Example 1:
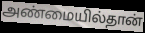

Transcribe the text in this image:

அண்மையில்தான்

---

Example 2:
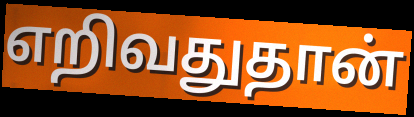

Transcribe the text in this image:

எறிவதுதான்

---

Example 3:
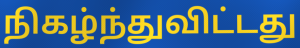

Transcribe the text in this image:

நிகழ்ந்துவிட்டது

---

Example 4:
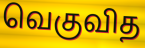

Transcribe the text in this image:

வெகுவித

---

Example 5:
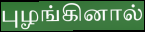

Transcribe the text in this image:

புழங்கினால்